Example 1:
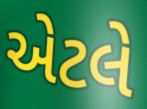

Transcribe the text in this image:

એેટલે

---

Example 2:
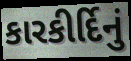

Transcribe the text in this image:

કારકીર્દિનું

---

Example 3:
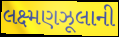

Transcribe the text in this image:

લક્ષ્મણઝૂલાની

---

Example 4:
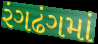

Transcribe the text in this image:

રંગઢંગમાં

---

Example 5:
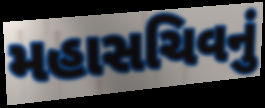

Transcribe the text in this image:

મહાસચિવનું